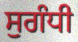
ਸੁਗੰਧੀ